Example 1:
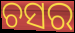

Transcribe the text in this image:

ଚସର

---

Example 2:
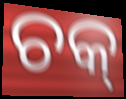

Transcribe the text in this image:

ଚକ୍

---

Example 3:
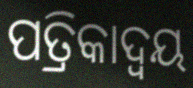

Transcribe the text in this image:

ପତ୍ରିକାଦ୍ୱୟ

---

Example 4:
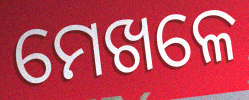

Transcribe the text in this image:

ମେଖଳେ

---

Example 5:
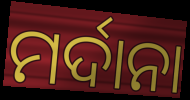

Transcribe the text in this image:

ମର୍ଦାନା